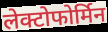
लेक्टोफोर्मिन